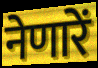
नेणारें